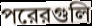
পরেরগুলি